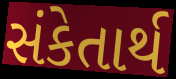
સંકેતાર્થ